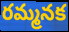
రమ్మనక